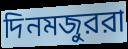
দিনমজুররা